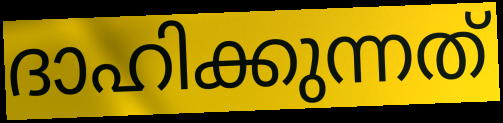
ദാഹിക്കുന്നത്